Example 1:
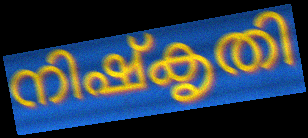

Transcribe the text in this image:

നിഷ്കൃതി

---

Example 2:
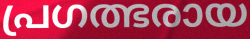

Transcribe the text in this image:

പ്രഗത്ഭരായ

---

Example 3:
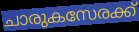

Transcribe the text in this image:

ചാരുകസേരക്ക്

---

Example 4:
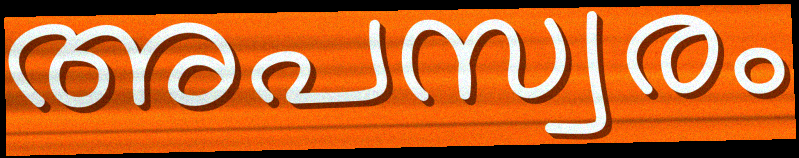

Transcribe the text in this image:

അപസ്വരം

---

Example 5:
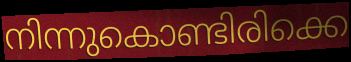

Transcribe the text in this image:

നിന്നുകൊണ്ടിരിക്കെ